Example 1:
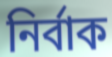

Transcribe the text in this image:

নির্বাক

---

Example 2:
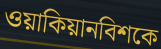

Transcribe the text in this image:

ওয়াকিয়ানবিশকে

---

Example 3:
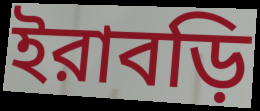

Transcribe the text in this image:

ইরাবড়ি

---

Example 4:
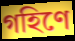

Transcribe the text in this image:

গহিণে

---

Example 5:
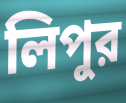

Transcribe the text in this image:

লিপুর